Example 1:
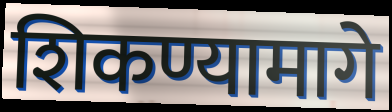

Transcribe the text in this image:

शिकण्यामागे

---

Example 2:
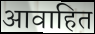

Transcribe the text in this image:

आवाहित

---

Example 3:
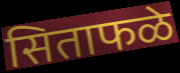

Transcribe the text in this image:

सिताफळे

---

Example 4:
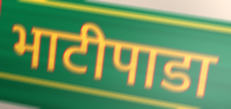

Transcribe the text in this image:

भाटीपाडा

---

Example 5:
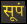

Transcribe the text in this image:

सूपं